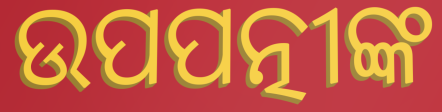
ଉପପତ୍ନୀଙ୍କ